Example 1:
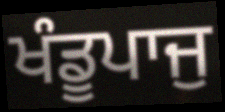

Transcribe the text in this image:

ਖੰਡੂਪਾਜੁ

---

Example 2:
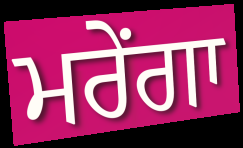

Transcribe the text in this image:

ਮਰੇਂਗਾ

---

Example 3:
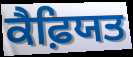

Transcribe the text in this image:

ਕੈਫ਼ਿਯਤ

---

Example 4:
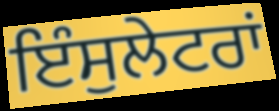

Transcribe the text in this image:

ਇੰਸੁਲੇਟਰਾਂ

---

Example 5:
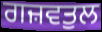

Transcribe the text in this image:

ਗਜ਼ਵਤੁਲ